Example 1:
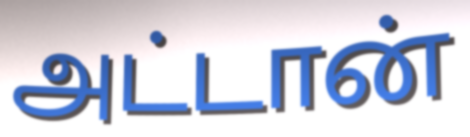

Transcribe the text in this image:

அட்டான்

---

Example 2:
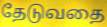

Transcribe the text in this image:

தேடுவதை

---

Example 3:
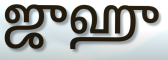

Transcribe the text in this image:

ஜுஹு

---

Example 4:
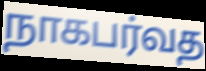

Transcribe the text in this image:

நாகபர்வத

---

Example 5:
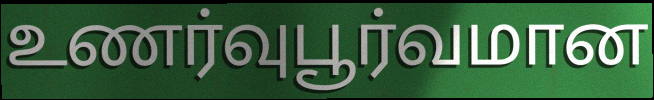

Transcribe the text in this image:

உணர்வுபூர்வமான